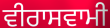
ਵੀਰਾਸਵਾਮੀ